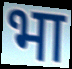
भा